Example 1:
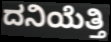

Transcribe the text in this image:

ದನಿಯೆತ್ತಿ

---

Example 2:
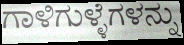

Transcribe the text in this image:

ಗಾಳಿಗುಳ್ಳೆಗಳನ್ನು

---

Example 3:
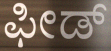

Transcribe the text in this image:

ಫೀಡ್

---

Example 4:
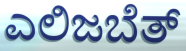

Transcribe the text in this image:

ಎಲಿಜಬೆತ್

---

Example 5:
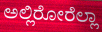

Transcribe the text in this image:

ಅಲ್ಲಿರೋರೆಲ್ಲಾ